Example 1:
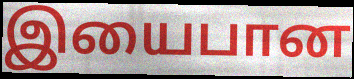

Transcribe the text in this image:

இயைபான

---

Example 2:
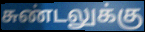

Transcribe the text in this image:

சுண்டலுக்கு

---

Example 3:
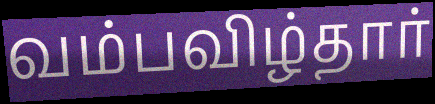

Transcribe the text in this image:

வம்பவிழ்தார்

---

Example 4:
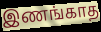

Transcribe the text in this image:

இணங்காத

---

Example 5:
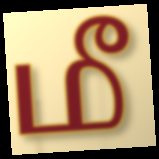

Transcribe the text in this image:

மீ